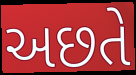
અછતે